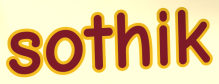
sothik